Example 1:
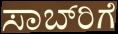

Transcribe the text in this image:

ಸಾಬ್‌ರಿಗೆ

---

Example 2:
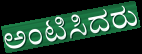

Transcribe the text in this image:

ಅಂಟಿಸಿದರು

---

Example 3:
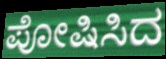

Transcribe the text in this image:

ಪೋಷಿಸಿದ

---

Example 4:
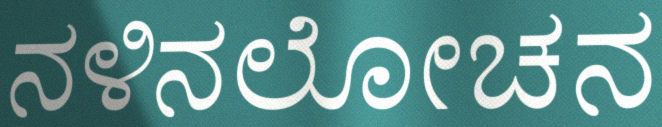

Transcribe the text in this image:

ನಳಿನಲೋಚನ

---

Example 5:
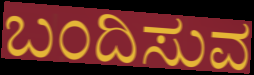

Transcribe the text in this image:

ಬಂದಿಸುವ